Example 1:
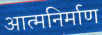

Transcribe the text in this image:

आत्मनिर्माण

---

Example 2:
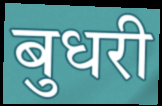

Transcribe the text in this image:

बुधरी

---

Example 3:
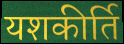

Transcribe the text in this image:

यशकीर्ति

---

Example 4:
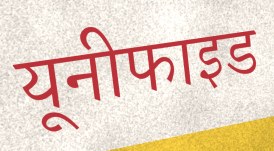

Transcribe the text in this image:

यूनीफाइड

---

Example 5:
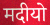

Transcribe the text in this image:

मदीयो